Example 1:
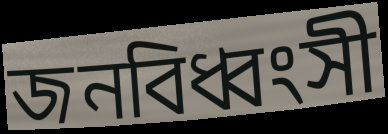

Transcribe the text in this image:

জনবিধ্বংসী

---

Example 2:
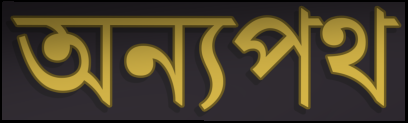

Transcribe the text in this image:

অন্যপথ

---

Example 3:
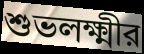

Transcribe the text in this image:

শুভলক্ষ্মীর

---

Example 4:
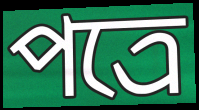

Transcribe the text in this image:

পত্রে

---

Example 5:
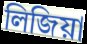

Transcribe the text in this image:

লিজিয়া